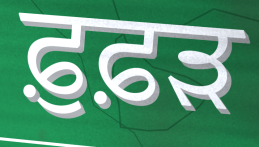
ਫ਼ੁਫ਼ੜ